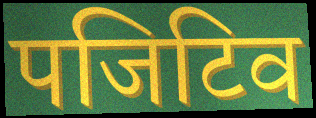
पजिटिव